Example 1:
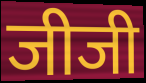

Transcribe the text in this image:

जीजी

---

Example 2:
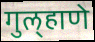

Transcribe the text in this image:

गुल्हाणे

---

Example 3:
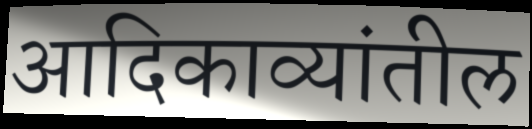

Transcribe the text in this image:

आदिकाव्यांतील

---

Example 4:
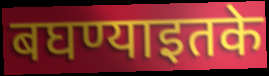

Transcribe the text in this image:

बघण्याइतके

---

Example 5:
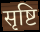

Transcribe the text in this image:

सृष्टि